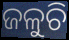
ଜଳୁଚି